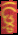
ଡ଼୍ଡି